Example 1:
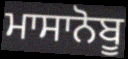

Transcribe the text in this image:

ਮਾਸਾਨੋਬੂ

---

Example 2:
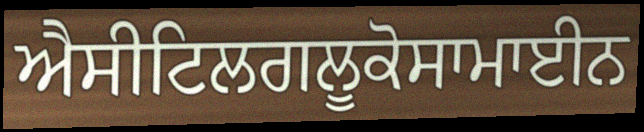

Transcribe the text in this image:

ਐਸੀਟਿਲਗਲੂਕੋਸਾਮਾਈਨ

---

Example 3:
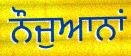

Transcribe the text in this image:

ਨੌਜੁਆਨਾਂ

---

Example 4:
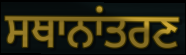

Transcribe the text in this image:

ਸਥਾਨਾਂਤਰਣ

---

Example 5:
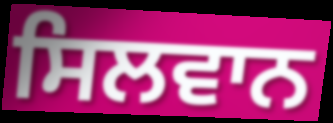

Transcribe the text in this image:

ਸਿਲਵਾਨ